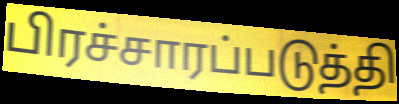
பிரச்சாரப்படுத்தி